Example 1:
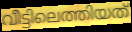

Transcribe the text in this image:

വീട്ടിലെത്തിയത്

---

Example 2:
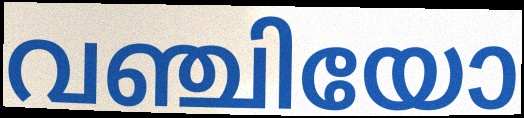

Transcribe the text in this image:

വഞ്ചിയോ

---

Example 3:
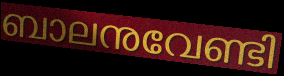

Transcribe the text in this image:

ബാലനുവേണ്ടി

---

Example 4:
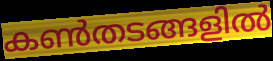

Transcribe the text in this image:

കൺതടങ്ങളിൽ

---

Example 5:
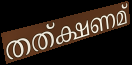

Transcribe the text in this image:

തത്ക്ഷണമ്